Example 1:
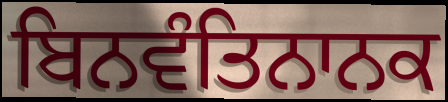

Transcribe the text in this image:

ਬਿਨਵੰਤਿਨਾਨਕ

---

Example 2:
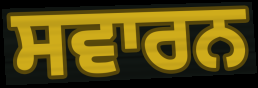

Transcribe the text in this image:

ਸਵਾਰਨ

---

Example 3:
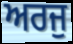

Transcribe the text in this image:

ਅਰਜੁ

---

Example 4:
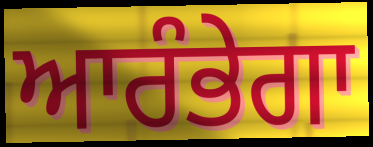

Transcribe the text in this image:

ਆਰੰਭੇਗਾ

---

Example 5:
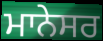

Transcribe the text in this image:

ਮਾਨੇਸਰ